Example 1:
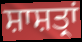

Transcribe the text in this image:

ਸ਼ਾਸ਼ਤ੍ਰਾਂ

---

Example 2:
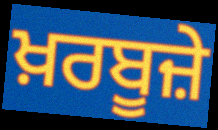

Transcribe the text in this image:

ਖ਼ਰਬੂਜ਼ੇ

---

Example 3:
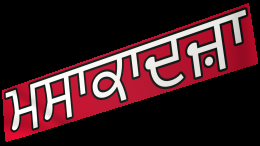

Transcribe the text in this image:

ਮਸਾਕਾਦਜ਼ਾ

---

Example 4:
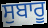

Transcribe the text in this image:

ਸੁਬਾਰੂ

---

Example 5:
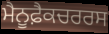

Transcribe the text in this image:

ਮੈਨੂਫ਼ੈਕਚਰਰਸ